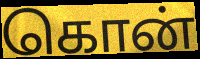
கொன்